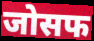
जोसफ